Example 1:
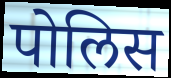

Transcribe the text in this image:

पोलिस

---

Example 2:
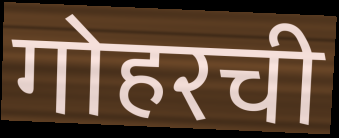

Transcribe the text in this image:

गोहरची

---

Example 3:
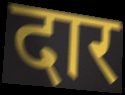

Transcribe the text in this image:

दार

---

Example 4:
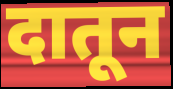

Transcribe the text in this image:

दातून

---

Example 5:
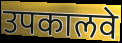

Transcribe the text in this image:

उपकालवे